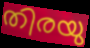
തിരയു